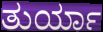
ತುರ್ಯಾ